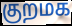
குறமக